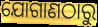
ଯୋଗାଣଠାରୁ